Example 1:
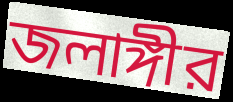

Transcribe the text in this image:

জলাঙ্গীর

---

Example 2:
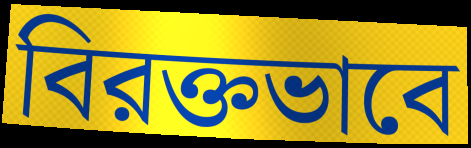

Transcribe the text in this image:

বিরক্তভাবে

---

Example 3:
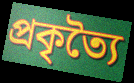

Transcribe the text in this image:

প্রকৃত্যৈ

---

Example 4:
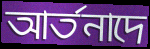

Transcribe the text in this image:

আর্তনাদে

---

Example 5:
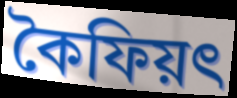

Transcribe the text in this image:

কৈফিয়ৎ